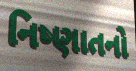
નિષ્ણાતનો